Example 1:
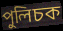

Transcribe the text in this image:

পুলিচক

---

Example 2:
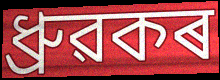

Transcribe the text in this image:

ধ্ৰুৱকৰ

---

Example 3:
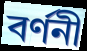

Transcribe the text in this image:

বৰ্ণনী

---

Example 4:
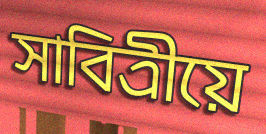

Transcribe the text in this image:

সাবিত্ৰীয়ে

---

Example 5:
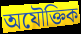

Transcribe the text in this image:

অযৌক্তিক